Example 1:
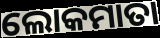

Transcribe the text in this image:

ଲୋକମାତା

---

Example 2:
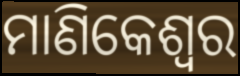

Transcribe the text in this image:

ମାଣିକେଶ୍ଵର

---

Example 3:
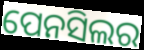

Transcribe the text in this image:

ପେନସିଲର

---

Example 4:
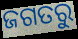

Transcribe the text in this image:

ଜଗତରୁ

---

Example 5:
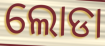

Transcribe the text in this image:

ଲୋଡା